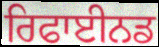
ਰਿਫਾਈਨਡ